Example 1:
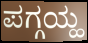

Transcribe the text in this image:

ಪಗ್ಗಯ್ಹ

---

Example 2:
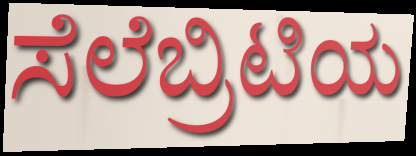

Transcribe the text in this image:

ಸೆಲೆಬ್ರಿಟಿಯ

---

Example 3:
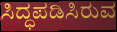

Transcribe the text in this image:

ಸಿದ್ಧಪಡಿಸಿರುವ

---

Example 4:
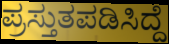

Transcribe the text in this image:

ಪ್ರಸ್ತುತಪಡಿಸಿದ್ದೆ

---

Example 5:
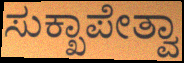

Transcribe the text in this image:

ಸುಕ್ಖಾಪೇತ್ವಾ